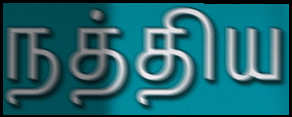
நத்திய